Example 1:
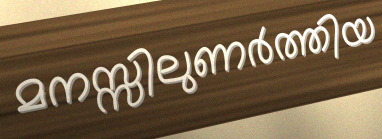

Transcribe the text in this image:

മനസ്സിലുണർത്തിയ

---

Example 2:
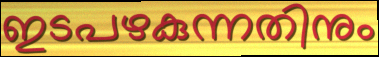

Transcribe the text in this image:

ഇടപഴകുന്നതിനും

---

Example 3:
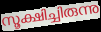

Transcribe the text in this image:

സൂക്ഷിച്ചിരുന്നു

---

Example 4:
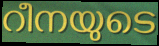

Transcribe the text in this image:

റീനയുടെ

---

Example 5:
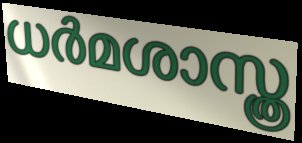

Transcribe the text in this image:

ധർമശാസ്ത്ര